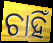
ଚାହିଁ